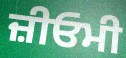
ਜ਼ੀਓਮੀ